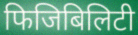
फिजिबिलिटी